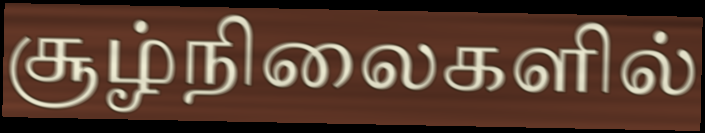
சூழ்நிலைகளில்